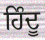
ਹਿੰਦੂ